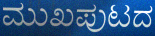
ಮುಖಪುಟದ